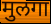
मुलगा